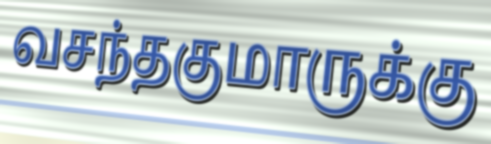
வசந்தகுமாருக்கு